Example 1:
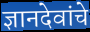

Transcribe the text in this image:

ज्ञानदेवांचे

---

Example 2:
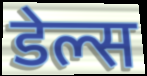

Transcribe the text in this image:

डेल्स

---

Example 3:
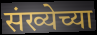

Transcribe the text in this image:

संख्येच्या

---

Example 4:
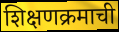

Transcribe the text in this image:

शिक्षणक्रमाची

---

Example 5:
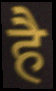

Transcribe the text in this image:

है